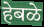
हेबळे